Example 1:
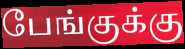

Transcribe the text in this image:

பேங்குக்கு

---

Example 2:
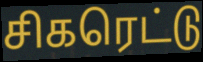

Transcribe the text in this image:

சிகரெட்டு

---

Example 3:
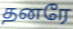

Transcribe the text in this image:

தனரே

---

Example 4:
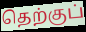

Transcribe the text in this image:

தெற்குப்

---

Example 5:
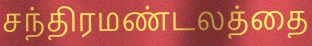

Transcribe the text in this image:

சந்திரமண்டலத்தை